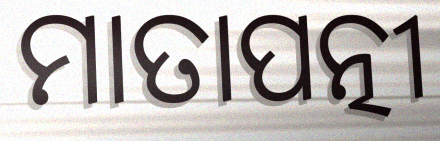
ମାତାପତ୍ନୀ